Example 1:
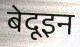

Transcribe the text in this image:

बेदूइन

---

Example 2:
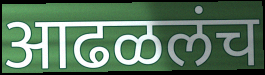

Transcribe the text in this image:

आढळलंच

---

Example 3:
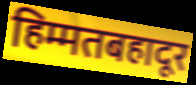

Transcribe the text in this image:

हिम्मतबहादूर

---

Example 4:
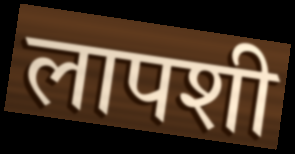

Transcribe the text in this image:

लापशी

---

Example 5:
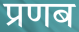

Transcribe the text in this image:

प्रणब